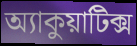
অ্যাকুয়াটিক্স